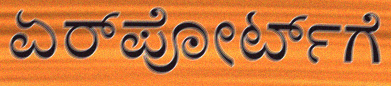
ಏರ್‌ಪೋರ್ಟ್‌ಗೆ